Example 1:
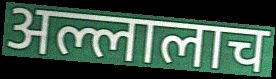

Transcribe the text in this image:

अल्लालाच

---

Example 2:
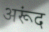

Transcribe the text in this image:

अरूंद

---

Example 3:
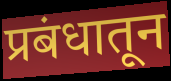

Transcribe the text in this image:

प्रबंधातून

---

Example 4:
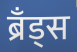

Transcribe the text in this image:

ब्रँड्स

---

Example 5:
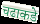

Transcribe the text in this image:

चढाकडे